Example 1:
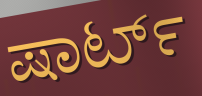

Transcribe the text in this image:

ಷಾರ್ಟ್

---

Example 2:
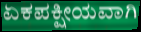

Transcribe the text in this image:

ಏಕಪಕ್ಷೀಯವಾಗಿ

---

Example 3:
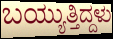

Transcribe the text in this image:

ಬಯ್ಯುತ್ತಿದ್ದಳು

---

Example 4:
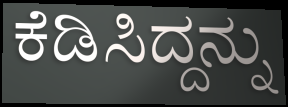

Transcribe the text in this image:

ಕೆಡಿಸಿದ್ದನ್ನು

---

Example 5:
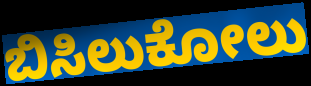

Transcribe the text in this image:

ಬಿಸಿಲುಕೋಲು